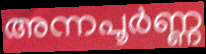
അന്നപൂർണ്ണ